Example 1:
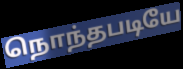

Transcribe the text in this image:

நொந்தபடியே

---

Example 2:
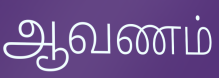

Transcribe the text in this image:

ஆவணம்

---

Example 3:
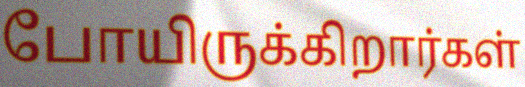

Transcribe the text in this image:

போயிருக்கிறார்கள்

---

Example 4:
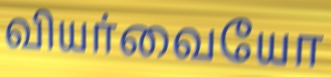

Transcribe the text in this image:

வியர்வையோ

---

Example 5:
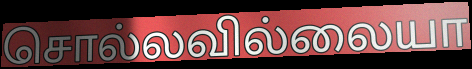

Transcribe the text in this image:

சொல்லவில்லையா